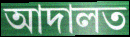
আদালত